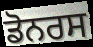
ਡੋਨਰਸ